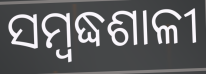
ସମ୍ବଦ୍ଧଶାଳୀ